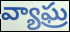
వ్యాఘ్ర